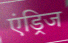
एंड्रिज